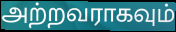
அற்றவராகவும்